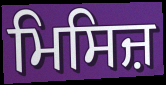
ਮਿਸਿਜ਼